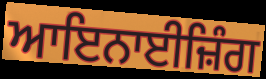
ਆਇਨਾਈਜ਼ਿੰਗ